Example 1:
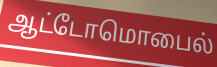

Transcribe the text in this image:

ஆட்டோமொபைல்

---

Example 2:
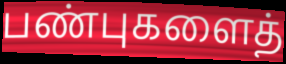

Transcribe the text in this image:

பண்புகளைத்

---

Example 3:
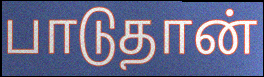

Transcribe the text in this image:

பாடுதான்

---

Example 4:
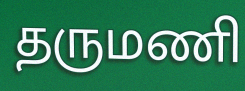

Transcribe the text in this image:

தருமணி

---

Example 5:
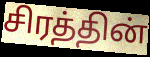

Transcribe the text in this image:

சிரத்தின்